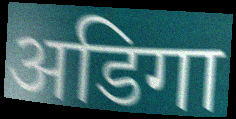
अडिगा